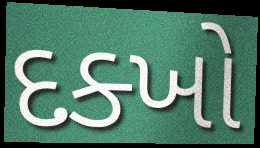
દક્ખો